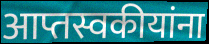
आप्तस्वकीयांना